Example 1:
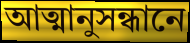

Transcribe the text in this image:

আত্মানুসন্ধানে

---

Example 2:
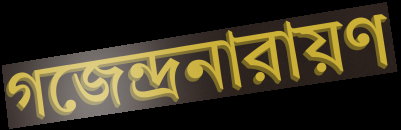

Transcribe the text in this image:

গজেন্দ্রনারায়ণ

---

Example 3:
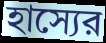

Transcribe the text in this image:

হাস্যের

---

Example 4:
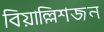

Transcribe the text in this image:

বিয়াল্লিশজন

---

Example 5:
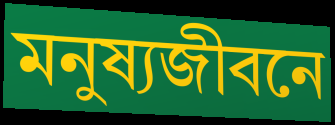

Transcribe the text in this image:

মনুষ্যজীবনে